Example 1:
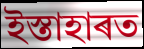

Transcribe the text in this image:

ইস্তাহাৰত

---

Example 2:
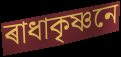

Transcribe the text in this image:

ৰাধাকৃষ্ণনে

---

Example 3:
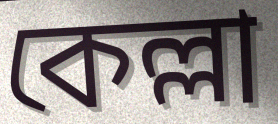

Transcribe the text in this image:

কেল্লা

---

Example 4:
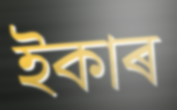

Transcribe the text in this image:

ইকাৰ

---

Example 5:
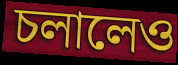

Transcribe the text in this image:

চলালেও